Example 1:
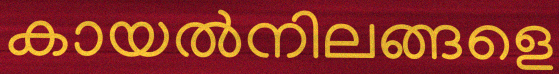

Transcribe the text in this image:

കായൽനിലങ്ങളെ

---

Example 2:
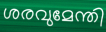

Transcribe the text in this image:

ശരവുമേന്തി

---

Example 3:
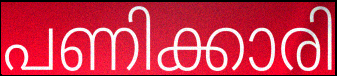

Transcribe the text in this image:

പണിക്കാരി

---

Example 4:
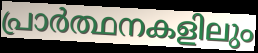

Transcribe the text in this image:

പ്രാർത്ഥനകളിലും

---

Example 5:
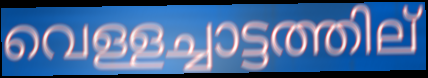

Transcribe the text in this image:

വെള്ളച്ചാട്ടത്തില്